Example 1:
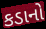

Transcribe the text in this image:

કડાનો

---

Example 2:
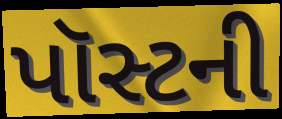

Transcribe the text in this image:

પૉસ્ટની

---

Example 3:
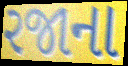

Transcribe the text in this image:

રજાના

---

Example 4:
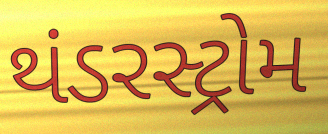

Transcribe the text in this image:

થંડરસ્ટ્રોમ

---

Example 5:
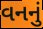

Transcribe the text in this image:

વનનું